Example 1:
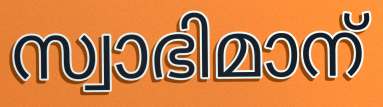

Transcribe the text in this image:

സ്വാഭിമാന്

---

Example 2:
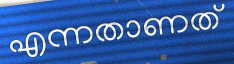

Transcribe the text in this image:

എന്നതാണത്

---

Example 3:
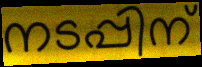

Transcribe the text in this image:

നടപ്പിന്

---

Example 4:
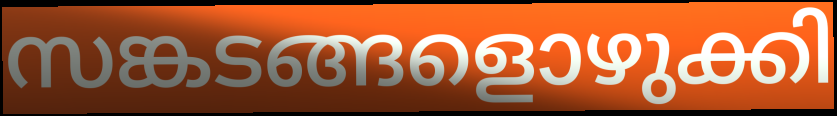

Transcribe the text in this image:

സങ്കടങ്ങളൊഴുക്കി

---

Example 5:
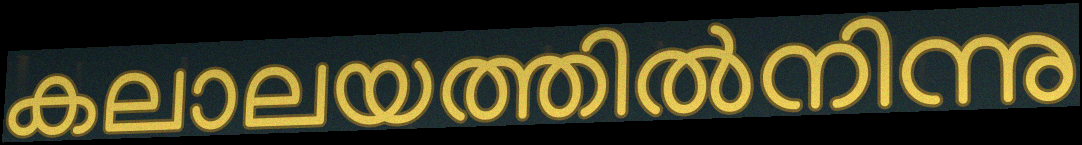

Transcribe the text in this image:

കലാലയത്തിൽനിന്നു